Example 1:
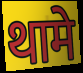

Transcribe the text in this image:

थामे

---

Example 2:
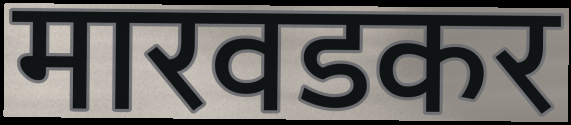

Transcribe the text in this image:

मारवडकर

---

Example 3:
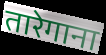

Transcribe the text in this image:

तारेगाना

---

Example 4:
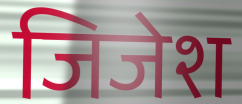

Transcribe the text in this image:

जिजेश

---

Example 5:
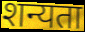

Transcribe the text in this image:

शन्यता